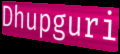
Dhupguri